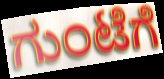
ಗುಂಟೆಗೆ